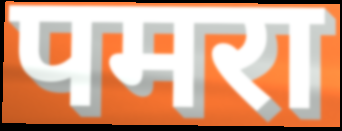
पमरा